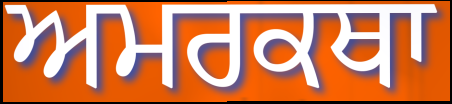
ਅਮਰਕਥਾ